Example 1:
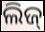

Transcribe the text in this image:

ଲିଜ୍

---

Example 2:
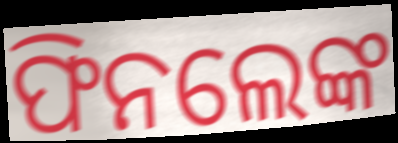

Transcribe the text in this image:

ଫିନଲେଙ୍କ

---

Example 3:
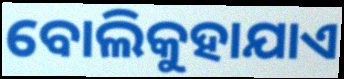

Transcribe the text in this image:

ବୋଲିକୁହାଯାଏ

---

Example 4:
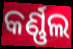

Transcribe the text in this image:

କର୍ଣ୍ଣଲ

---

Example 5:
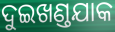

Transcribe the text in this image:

ଦୁଇଖଣ୍ଡଯାକ